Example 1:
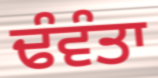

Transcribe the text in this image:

ਢੰਵੰਤਾ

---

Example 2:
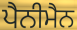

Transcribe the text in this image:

ਪੈਨੀਮੈਨ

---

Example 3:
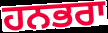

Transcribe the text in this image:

ਹਨਭਰਾ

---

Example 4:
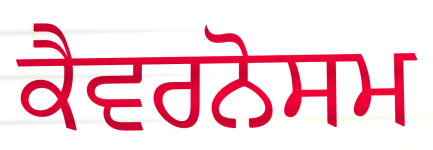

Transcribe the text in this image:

ਕੈਵਰਨੋਸਮ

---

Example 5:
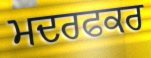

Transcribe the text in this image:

ਮਦਰਫਕਰ